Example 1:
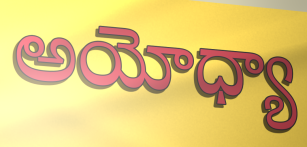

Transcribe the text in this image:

అయోధ్యా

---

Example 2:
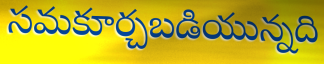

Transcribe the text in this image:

సమకూర్చబడియున్నది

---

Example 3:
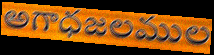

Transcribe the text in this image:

అగాధజలముల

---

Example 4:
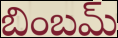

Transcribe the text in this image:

బింబమ్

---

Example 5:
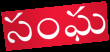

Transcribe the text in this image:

సంఘ